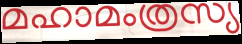
മഹാമംത്രസ്യ